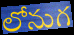
లోనుగ